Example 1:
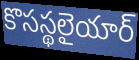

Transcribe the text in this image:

కొసస్థలైయార్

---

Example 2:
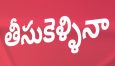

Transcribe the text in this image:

తీసుకెళ్ళినా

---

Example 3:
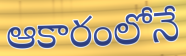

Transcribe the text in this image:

ఆకారంలోనే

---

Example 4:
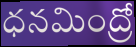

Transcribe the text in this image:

ధనమింద్రో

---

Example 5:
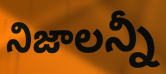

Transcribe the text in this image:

నిజాలన్నీ